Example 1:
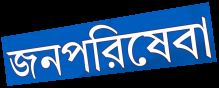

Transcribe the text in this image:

জনপরিষেবা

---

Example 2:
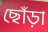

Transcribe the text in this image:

ছোঁড়া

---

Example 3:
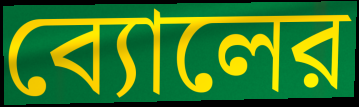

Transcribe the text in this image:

ব্যোলের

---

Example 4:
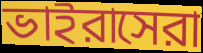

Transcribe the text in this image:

ভাইরাসেরা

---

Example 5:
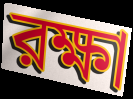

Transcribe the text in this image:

রক্ষা